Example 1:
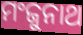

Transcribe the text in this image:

ମଂଜୁନାଥ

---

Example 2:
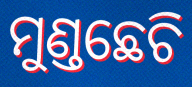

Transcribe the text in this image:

ମୁଣ୍ଡଛେଚି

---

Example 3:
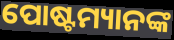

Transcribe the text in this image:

ପୋଷ୍ଟମ୍ୟାନଙ୍କ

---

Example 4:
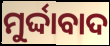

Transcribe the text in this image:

ମୁର୍ଦ୍ଦାବାଦ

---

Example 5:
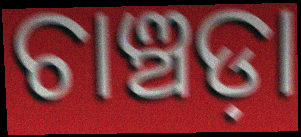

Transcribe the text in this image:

ଚାଞ୍ଚଡ଼ା